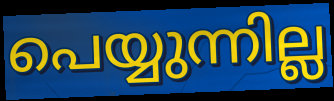
പെയ്യുന്നില്ല